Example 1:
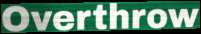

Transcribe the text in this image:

Overthrow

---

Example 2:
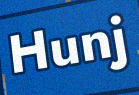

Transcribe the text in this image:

Hunj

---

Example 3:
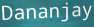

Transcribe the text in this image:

Dananjay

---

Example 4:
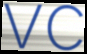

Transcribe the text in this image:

vc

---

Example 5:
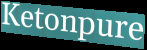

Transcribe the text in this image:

Ketonpure